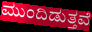
ಮುಂದಿಡುತ್ತವೆ